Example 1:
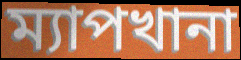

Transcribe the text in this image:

ম্যাপখানা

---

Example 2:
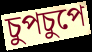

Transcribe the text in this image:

চুপচুপে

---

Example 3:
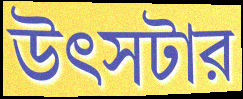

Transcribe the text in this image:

উৎসটার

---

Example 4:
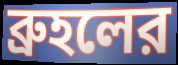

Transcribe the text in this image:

ব্রুহলের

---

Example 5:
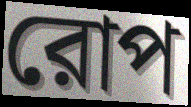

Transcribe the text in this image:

রোপ